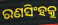
ରଣସିଂହକୁ